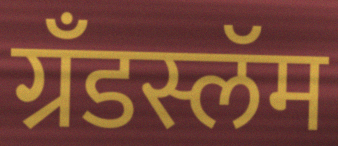
ग्रँडस्लॅम